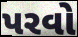
પરવો